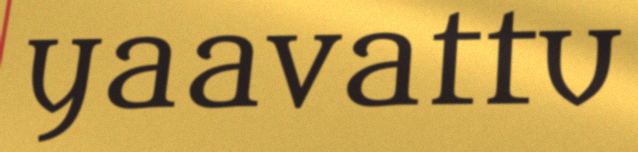
yaavattu